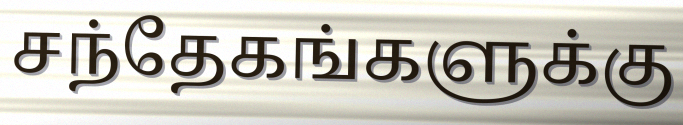
சந்தேகங்களுக்கு